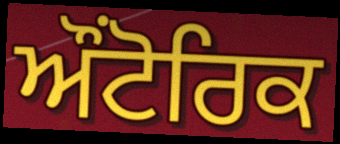
ਔਂਟੋਰਿਕ